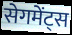
सेगमेंट्स